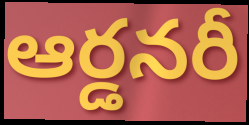
ఆర్డనరీ